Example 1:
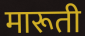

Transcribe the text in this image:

मारूती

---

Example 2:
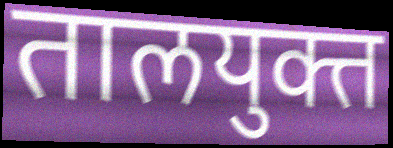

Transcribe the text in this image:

तालयुक्त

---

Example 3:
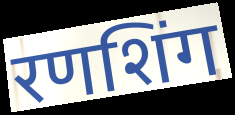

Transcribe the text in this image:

रणशिंग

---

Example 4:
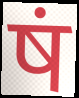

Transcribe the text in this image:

षं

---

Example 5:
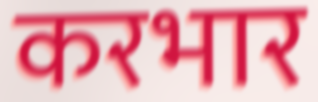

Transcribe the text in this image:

करभार